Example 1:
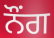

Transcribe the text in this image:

ਨੌਂਗ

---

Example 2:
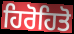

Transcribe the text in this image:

ਹਿਰੋਹਿਤੋ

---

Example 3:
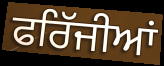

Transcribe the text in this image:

ਫਰਿੱਜੀਆਂ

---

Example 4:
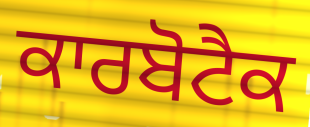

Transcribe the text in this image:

ਕਾਰਬੋਟੈਕ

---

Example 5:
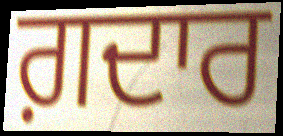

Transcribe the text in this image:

ਗ਼ਦਾਰ